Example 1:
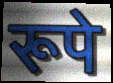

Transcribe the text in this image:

रूपे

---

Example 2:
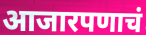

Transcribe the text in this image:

आजारपणाचं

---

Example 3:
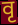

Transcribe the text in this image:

वृ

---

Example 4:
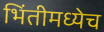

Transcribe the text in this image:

भिंतीमध्येच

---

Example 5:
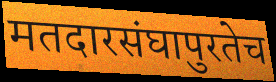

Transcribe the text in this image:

मतदारसंघापुरतेच